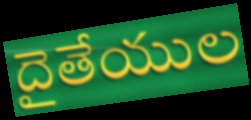
దైతేయుల